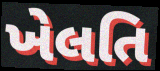
ખેલતિ